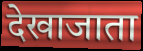
देखाजाता